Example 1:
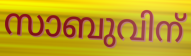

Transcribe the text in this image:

സാബുവിന്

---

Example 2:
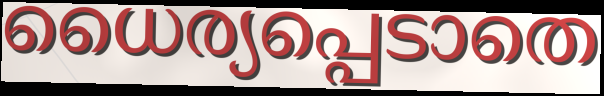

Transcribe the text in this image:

ധൈര്യപ്പെടാതെ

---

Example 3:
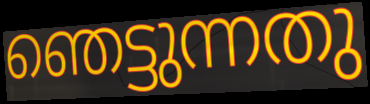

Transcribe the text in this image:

ഞെട്ടുന്നതു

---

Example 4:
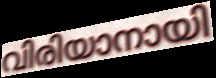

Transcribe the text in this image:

വിരിയാനായി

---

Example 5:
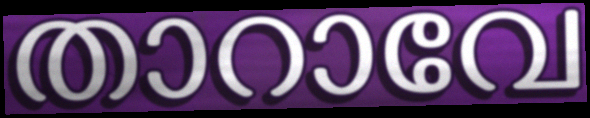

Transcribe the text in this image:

താറാവേ